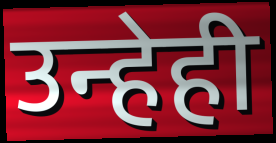
उन्हेही